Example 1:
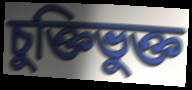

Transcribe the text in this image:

চুক্তিভুক্ত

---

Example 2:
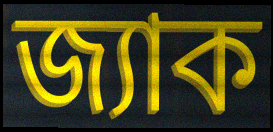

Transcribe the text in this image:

জ্যাক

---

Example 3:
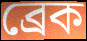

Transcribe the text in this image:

ব্রেক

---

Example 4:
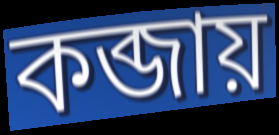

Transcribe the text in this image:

কব্জায়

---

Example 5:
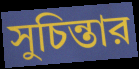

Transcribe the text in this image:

সুচিন্তার